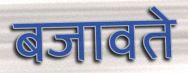
बजावते